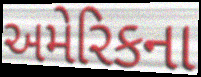
અમેરિકના